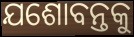
ଯଶୋବନ୍ତକୁ